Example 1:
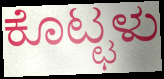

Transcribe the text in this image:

ಕೊಟ್ಟಳು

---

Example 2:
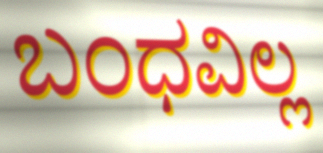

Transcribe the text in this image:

ಬಂಧವಿಲ್ಲ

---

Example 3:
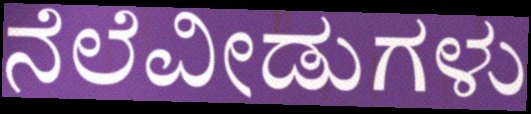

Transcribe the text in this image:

ನೆಲೆವೀಡುಗಳು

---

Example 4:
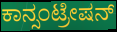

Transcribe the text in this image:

ಕಾನ್ಸಂಟ್ರೇಷನ್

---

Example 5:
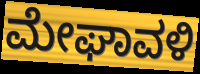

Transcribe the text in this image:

ಮೇಘಾವಳಿ